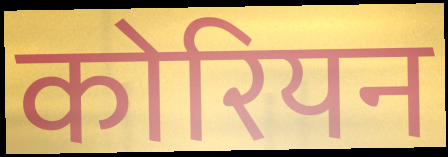
कोरियन